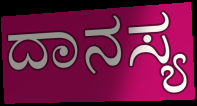
ದಾನಸ್ಯ